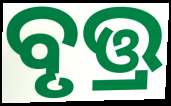
ବୃତ୍ତ୍ର